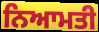
ਨਿਆਮਤੀ